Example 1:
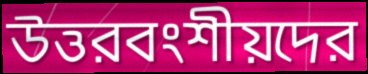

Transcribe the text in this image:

উত্তরবংশীয়দের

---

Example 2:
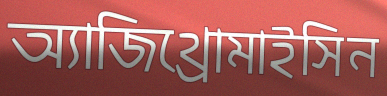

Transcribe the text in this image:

অ্যাজিথ্রোমাইসিন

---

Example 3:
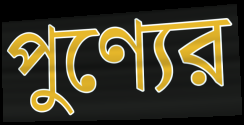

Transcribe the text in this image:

পুণ্যের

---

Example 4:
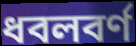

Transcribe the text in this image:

ধবলবর্ণ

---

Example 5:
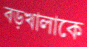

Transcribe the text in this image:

বড়খালাকে